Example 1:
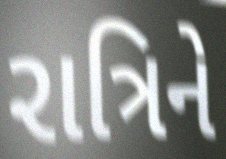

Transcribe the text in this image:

રાત્રિને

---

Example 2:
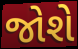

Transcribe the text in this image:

જોશે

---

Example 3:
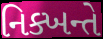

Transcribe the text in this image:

નિક્ખન્તે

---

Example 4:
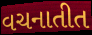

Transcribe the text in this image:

વચનાતીત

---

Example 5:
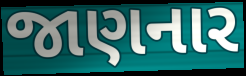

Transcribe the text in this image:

જાણનાર